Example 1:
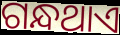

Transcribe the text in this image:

ଗନ୍ଧଥାଏ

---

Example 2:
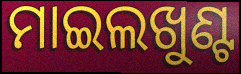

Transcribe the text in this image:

ମାଇଲଖୁଣ୍ଟ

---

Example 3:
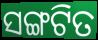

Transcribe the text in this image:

ସଙ୍ଗଟିତ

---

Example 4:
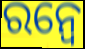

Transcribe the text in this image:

ରନ୍ୱେ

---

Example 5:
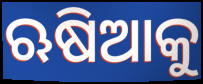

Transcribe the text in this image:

ଋଷିଆକୁ